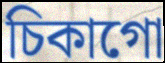
চিকাগো